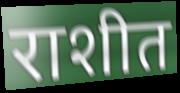
राशीत